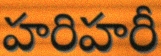
హరిహరీ